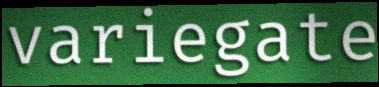
variegate